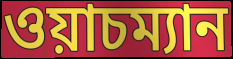
ওয়াচম্যান